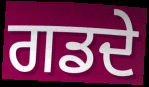
ਗਡਦੇ